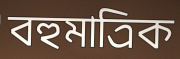
বহুমাত্রিক